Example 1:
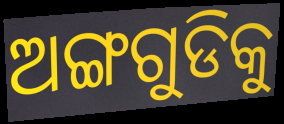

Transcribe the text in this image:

ଅଙ୍ଗଗୁଡିକୁ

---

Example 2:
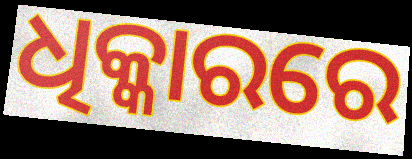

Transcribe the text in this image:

ଧିକ୍କାରରେ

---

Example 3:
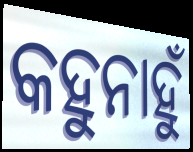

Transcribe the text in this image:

କହୁନାହୁଁ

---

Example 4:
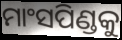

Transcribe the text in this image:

ମାଂସପିଣ୍ଡକୁ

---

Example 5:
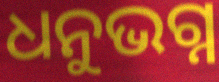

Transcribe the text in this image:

ଧନୁଭଗ୍ନ